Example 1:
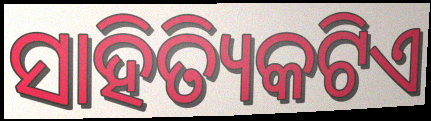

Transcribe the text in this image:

ସାହିତ୍ୟିକଟିଏ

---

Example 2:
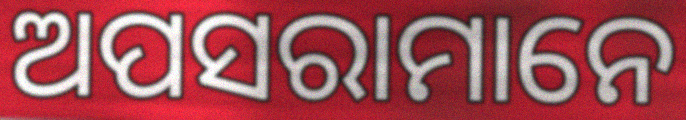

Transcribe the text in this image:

ଅପସରାମାନେ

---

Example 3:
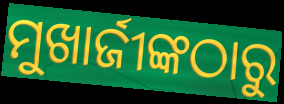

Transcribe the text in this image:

ମୁଖାର୍ଜୀଙ୍କଠାରୁ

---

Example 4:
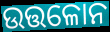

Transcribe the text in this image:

ଉତ୍ତଳୋନ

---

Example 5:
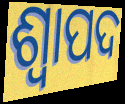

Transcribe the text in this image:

ଶ୍ୱାପଦ